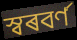
স্বৰবৰ্ণ